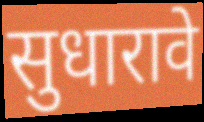
सुधारावे